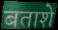
बताशे